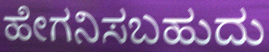
ಹೇಗನಿಸಬಹುದು